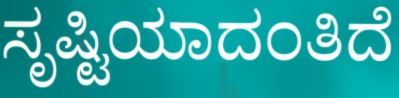
ಸೃಷ್ಟಿಯಾದಂತಿದೆ